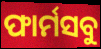
ଫାର୍ମସବୁ